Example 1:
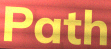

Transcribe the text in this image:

Path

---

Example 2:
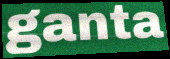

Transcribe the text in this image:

ganta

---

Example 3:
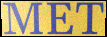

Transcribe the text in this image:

MET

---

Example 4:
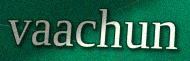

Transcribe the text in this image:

vaachun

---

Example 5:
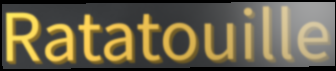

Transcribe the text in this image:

Ratatouille